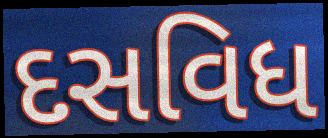
દસવિધ